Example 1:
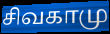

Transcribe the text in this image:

சிவகாமு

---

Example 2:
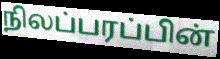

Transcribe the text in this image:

நிலப்பரப்பின்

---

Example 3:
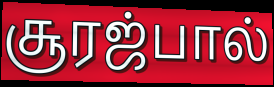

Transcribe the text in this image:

சூரஜ்பால்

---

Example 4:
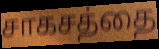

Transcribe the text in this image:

சாகசத்தை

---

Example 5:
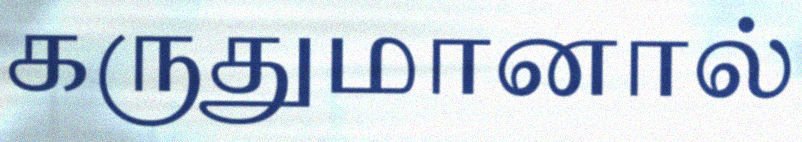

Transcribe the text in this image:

கருதுமானால்